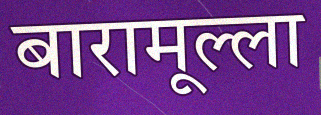
बारामूल्ला